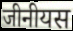
जीनीयस